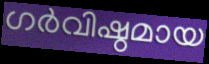
ഗർവിഷ്ഠമായ